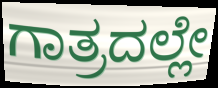
ಗಾತ್ರದಲ್ಲೇ